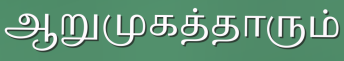
ஆறுமுகத்தாரும்